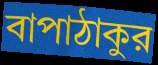
বাপাঠাকুর